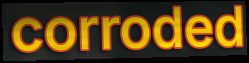
corroded